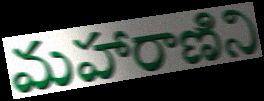
మహారాణిని